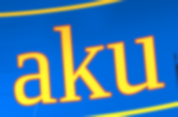
aku